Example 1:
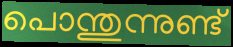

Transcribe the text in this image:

പൊന്തുന്നുണ്ട്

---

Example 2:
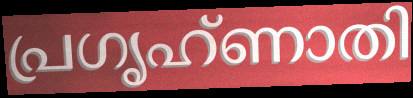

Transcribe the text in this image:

പ്രഗൃഹ്ണാതി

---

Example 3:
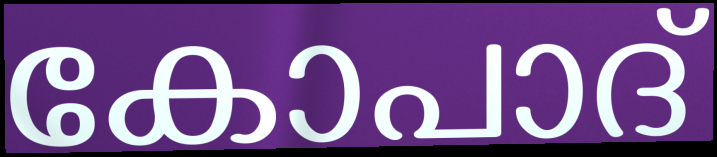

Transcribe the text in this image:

കോപാദ്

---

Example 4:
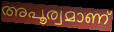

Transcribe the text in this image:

അപൂര്വമാണ്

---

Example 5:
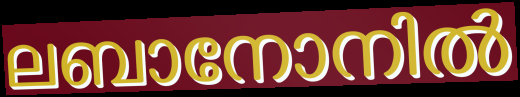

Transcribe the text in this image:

ലബാനോനിൽ